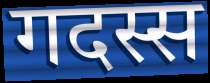
गदस्स